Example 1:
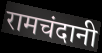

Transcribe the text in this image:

रामचंदानी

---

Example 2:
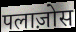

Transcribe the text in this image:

पलाज़ोस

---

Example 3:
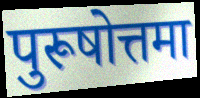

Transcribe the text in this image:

पुरूषोत्तमा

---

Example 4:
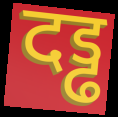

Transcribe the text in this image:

दड्ढ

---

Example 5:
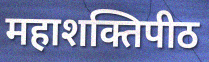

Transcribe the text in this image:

महाशक्तिपीठ